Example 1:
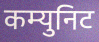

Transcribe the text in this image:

कम्युनिट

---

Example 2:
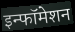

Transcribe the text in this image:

इन्फॉमेशन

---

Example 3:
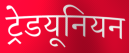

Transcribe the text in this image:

ट्रेडयूनियन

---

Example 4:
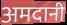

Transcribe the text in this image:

अमदानी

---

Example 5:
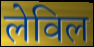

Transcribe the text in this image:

लेविल